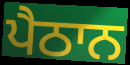
ਪੈਠਾਨ